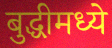
बुद्धीमध्ये